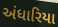
અંધારિયા